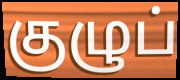
குழுப்